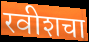
रवीशचा